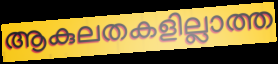
ആകുലതകളില്ലാത്ത